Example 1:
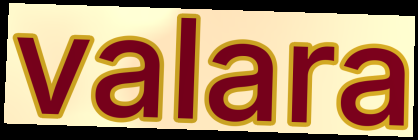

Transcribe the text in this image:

valara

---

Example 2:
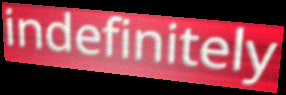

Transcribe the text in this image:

indefinitely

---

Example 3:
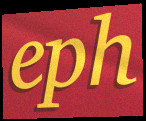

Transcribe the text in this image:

eph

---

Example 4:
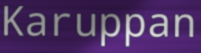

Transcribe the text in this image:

Karuppan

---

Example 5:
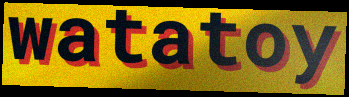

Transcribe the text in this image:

watatoy